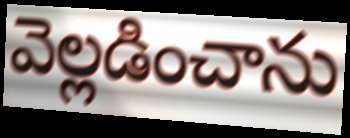
వెల్లడించాను